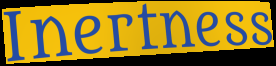
Inertness